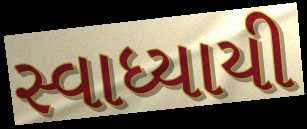
સ્વાધ્યાયી